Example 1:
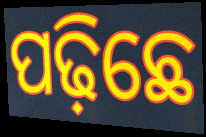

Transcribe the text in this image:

ପଢ଼ିଛେ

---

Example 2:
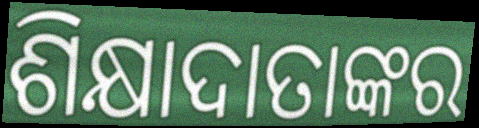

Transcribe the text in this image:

ଶିକ୍ଷାଦାତାଙ୍କର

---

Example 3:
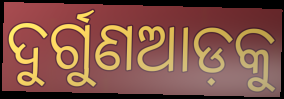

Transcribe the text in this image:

ଦୁର୍ଗୁଣଆଡ଼କୁ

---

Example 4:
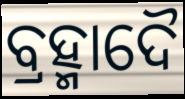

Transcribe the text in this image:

ବ୍ରହ୍ମାଦୈ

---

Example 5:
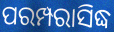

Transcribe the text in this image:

ପରମ୍ପରାସିଦ୍ଧ